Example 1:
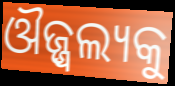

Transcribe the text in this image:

ଔଜ୍ଜ୍ଵଲ୍ୟକୁ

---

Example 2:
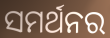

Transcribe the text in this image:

ସମର୍ଥନର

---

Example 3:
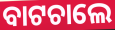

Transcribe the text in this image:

ବାଟଚାଲେ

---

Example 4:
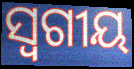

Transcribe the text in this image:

ସ୍ୱଗୀୟ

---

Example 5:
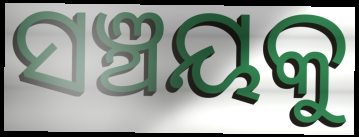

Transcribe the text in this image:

ସଞ୍ଚୟକୁ